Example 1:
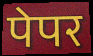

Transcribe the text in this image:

पेपर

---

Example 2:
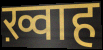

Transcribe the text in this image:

ख़्वाह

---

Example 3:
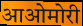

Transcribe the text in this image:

आओमोरी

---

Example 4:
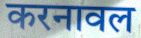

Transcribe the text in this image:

करनावल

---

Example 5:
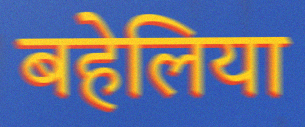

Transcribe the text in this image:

बहेलिया